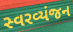
સ્વરવ્યંજન